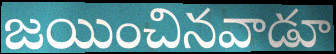
జయించినవాడూ